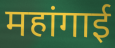
महांगाई